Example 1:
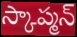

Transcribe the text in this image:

స్కాప్మన్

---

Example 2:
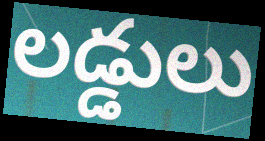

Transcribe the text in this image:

లడ్డులు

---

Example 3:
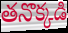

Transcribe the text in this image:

తనొక్కడి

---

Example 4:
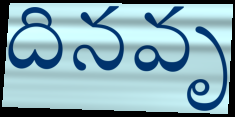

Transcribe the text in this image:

దినవృ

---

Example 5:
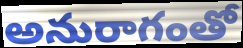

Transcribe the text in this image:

అనురాగంతో